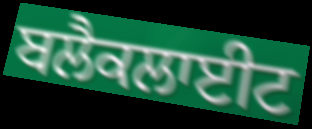
ਬਲੈਕਲਾਈਟ